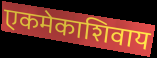
एकमेकाशिवाय